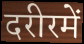
दरीरमें